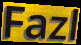
Fazl